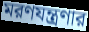
মরণযন্ত্রণার